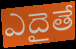
ఎదైతే